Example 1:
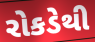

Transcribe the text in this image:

રોકડેથી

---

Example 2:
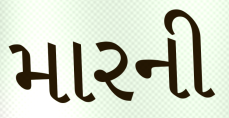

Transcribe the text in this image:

મારની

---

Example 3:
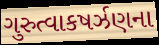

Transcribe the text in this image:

ગુરુત્વાકષર્ઝણના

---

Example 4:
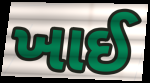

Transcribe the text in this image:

ખાઈ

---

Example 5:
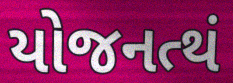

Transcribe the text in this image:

યોજનત્થં